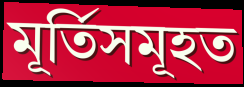
মূৰ্তিসমূহত